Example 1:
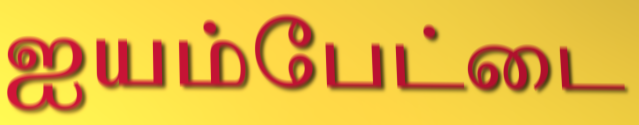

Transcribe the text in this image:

ஐயம்பேட்டை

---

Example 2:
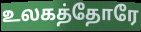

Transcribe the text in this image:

உலகத்தோரே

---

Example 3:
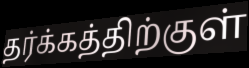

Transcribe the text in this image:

தர்க்கத்திற்குள்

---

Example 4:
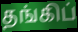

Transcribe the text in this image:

தங்கிப்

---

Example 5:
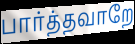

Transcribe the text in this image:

பார்த்தவாறே